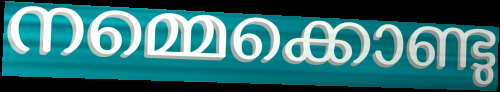
നമ്മെക്കൊണ്ടു